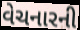
વેચનારની